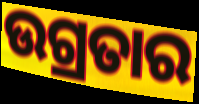
ଉଗ୍ରତାର